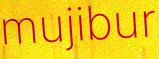
mujibur